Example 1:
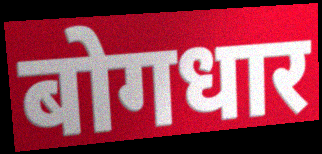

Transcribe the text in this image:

बोगधार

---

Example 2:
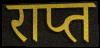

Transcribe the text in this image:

राप्त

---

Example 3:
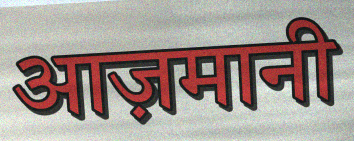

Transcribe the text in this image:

आज़मानी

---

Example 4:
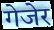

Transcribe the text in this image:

गेजेर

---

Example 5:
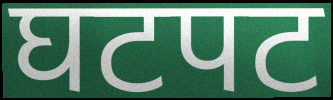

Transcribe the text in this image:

घटपट